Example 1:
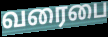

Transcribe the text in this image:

வரைபை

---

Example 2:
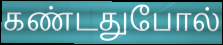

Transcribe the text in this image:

கண்டதுபோல்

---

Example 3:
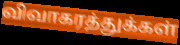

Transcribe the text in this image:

விவாகரத்துக்கள்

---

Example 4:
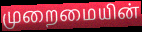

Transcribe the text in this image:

முறைமையின்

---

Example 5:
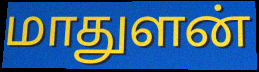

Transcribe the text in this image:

மாதுளன்